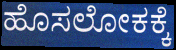
ಹೊಸಲೋಕಕ್ಕೆ